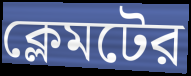
ক্লেমটের